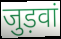
जुड़वां